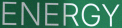
ENERGY